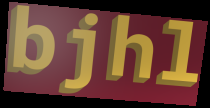
bjhl